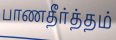
பாணதீர்த்தம்